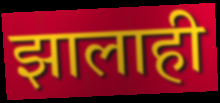
झालाही